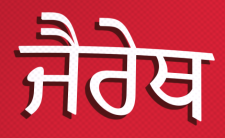
ਜੈਰੇਥ